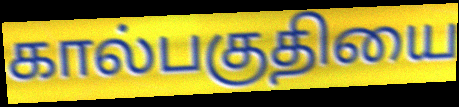
கால்பகுதியை